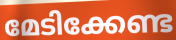
മേടിക്കേണ്ട